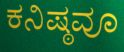
ಕನಿಷ್ಠವೂ